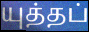
யுத்தப்